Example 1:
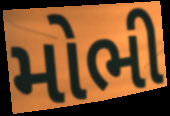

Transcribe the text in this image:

મોભી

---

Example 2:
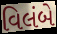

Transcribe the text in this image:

વિલંબે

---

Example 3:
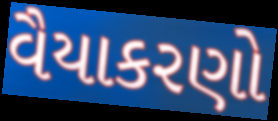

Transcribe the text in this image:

વૈયાકરણો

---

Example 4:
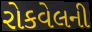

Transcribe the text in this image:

રોકવેલની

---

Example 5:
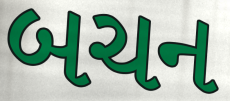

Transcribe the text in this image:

બચન